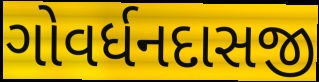
ગોવર્ધનદાસજી